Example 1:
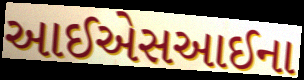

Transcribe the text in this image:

આઈએસઆઈના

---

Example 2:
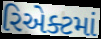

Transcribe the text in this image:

રિએક્ટમાં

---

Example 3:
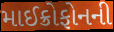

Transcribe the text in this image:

માઈક્રોફોનની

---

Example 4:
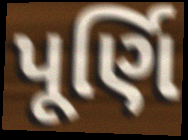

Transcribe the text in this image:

પૂર્ણિ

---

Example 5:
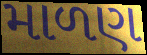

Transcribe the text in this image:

માળણ